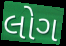
લોગ